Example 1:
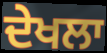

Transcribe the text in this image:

ਦੇਖਲਾ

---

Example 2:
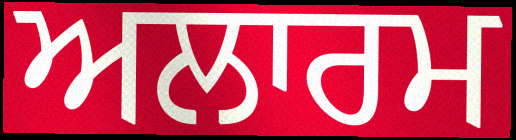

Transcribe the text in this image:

ਅਲਾਰਮ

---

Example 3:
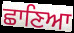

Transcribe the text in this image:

ਛਾਣਿਆ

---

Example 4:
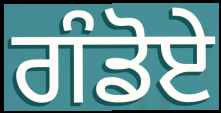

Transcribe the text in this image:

ਗੰਡੋਏ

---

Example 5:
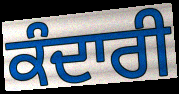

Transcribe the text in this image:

ਕੰਦਾਰੀ